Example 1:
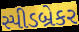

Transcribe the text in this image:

સ્પીડબ્રેકર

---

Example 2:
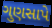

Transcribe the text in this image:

ગુણસાપે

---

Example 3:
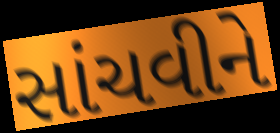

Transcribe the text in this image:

સાંચવીને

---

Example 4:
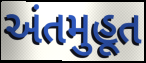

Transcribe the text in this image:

અંતમુહૂત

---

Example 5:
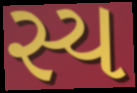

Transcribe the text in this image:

સ્ય